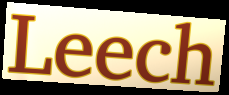
Leech